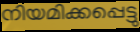
നിയമിക്കപ്പെട്ടു